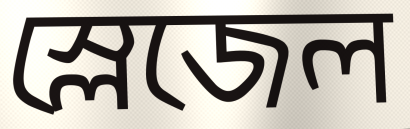
স্লেজেল